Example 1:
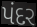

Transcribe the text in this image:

પંદર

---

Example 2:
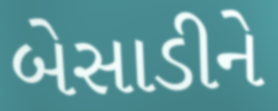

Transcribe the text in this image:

બેસાડીને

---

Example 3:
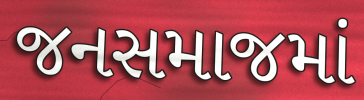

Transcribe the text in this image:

જનસમાજમાં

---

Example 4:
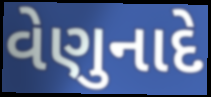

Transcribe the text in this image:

વેણુનાદે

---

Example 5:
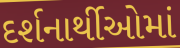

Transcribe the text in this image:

દર્શનાર્થીઓમાં